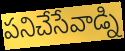
పనిచేసేవాడ్ని